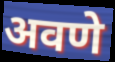
अवणे